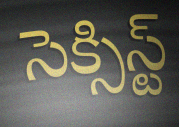
సెక్సిస్ట్